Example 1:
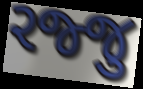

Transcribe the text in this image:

રજ્જુ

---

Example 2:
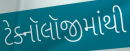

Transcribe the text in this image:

ટેક્નૉલૉજીમાંથી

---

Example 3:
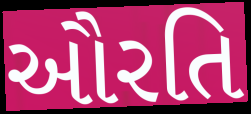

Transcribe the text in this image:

ઔરતિ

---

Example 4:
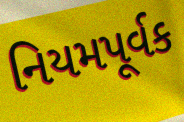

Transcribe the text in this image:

નિયમપૂર્વક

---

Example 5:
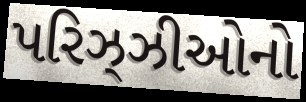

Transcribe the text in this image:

પરિઝ્ઝીઓનો